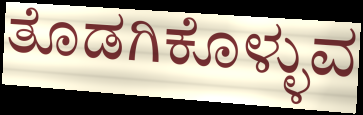
ತೊಡಗಿಕೊಳ್ಳುವ